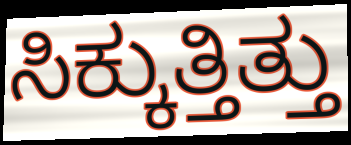
ಸಿಕ್ಕುತ್ತಿತ್ತು